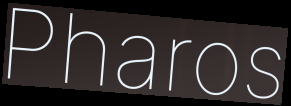
Pharos